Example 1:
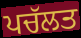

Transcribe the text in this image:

ਪਚੱਲਤ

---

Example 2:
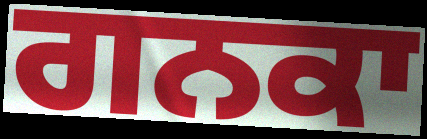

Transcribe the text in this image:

ਗਨਕਾ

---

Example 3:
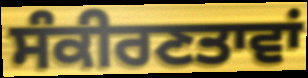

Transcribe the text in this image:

ਸੰਕੀਰਣਤਾਵਾਂ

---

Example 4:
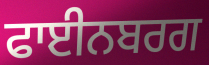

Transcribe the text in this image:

ਫਾਈਨਬਰਗ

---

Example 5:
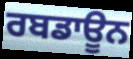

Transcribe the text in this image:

ਰਬਡਾਊਨ